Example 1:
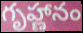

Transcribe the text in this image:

గృహ్ణానం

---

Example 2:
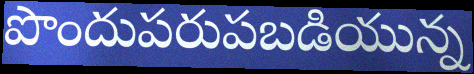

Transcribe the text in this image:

పొందుపరుపబడియున్న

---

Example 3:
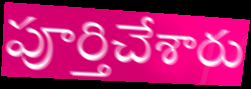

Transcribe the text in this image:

పూర్తిచేశారు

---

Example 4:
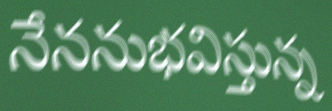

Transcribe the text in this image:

నేననుభవిస్తున్న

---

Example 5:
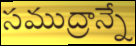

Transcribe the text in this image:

సముద్రాన్నే